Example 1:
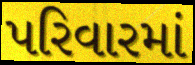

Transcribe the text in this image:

પરિવારમાં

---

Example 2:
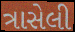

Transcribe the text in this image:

ત્રાસેલી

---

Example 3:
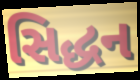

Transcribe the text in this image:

સિદ્ધન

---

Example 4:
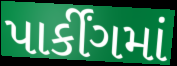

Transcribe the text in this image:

પાર્કીંગમાં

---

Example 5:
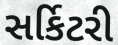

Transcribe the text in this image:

સર્કિટરી